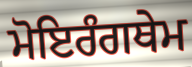
ਮੋਇਰੰਗਥੇਮ